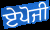
ਏਪੋਜੀ